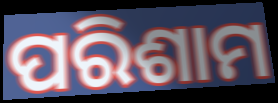
ପରିଶାମ